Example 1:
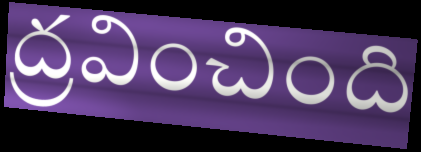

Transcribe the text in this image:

ద్రవించింది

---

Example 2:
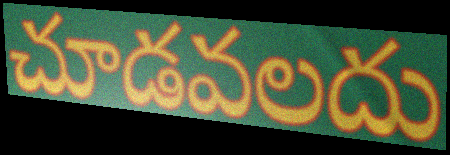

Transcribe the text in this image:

చూడవలదు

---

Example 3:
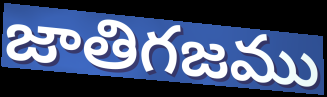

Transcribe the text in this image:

జాతిగజము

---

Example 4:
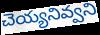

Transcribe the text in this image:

చెయ్యనివ్వని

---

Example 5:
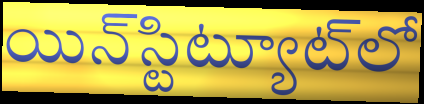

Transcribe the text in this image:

యిన్‌స్టిట్యూట్‌లో